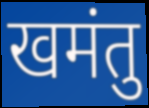
खमंतु